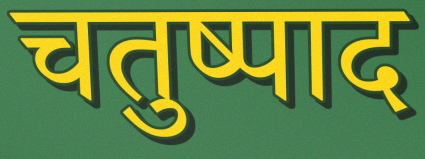
चतुष्पाद